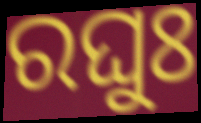
ରଘୁଃ